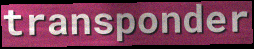
transponder